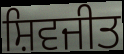
ਸ਼ਿਵਜੀਤ